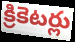
క్రికెటర్లు